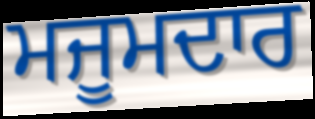
ਮਜੂਮਦਾਰ